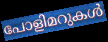
പോളിമറുകൾ